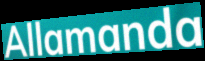
Allamanda